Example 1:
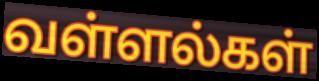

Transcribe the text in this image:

வள்ளல்கள்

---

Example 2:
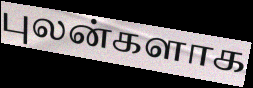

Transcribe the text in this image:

புலன்களாக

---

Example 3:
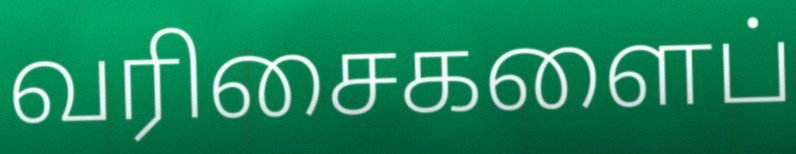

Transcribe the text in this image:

வரிசைகளைப்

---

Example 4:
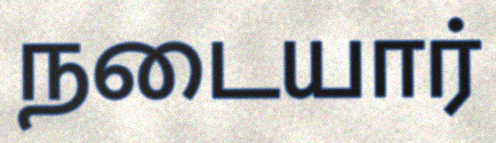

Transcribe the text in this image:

நடையார்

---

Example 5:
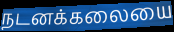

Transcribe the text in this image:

நடனக்கலையை